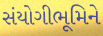
સંયોગીભૂમિને